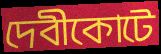
দেবীকোটে